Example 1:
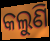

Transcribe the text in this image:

କଲୁଣି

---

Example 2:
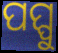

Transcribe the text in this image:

ପପ୍ପୁ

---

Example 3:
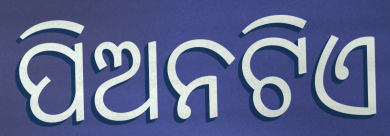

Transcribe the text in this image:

ପିଅନଟିଏ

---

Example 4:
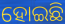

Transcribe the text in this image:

ହୋଇଛି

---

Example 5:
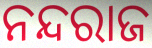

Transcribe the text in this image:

ନନ୍ଦରାଜ